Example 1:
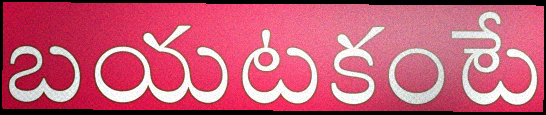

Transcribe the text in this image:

బయటకంటే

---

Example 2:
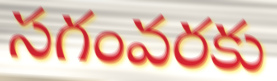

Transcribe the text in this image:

సగంవరకు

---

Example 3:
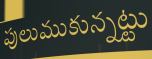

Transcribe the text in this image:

పులుముకున్నట్టు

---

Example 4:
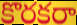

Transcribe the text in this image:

కొరకరా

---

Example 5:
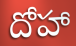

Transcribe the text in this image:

దోహా